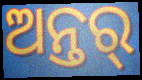
ଅନ୍ତର୍